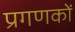
प्रगणकों